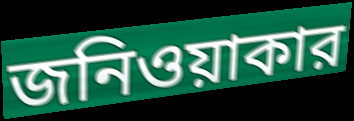
জনিওয়াকার